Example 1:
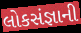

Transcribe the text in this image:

લોકસંજ્ઞાની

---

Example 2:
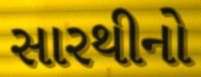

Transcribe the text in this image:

સારથીનો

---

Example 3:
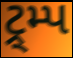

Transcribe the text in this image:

ટ્ર્મ્પ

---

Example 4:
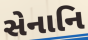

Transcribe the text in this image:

સેનાનિ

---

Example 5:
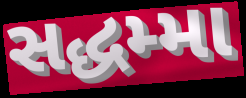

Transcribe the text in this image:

સદ્ધમ્મા